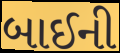
બાઈની